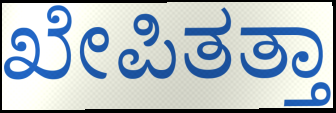
ಖೇಪಿತತ್ತಾ